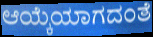
ಆಯ್ಕೆಯಾಗದಂತೆ